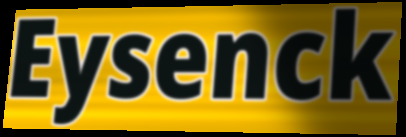
Eysenck